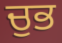
ਚੁਭ